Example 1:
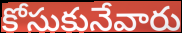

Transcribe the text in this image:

కోసుకునేవారు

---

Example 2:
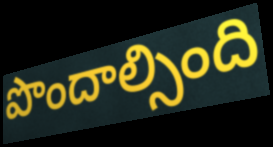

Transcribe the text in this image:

పొందాల్సింది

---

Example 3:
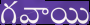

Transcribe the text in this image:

గవాయి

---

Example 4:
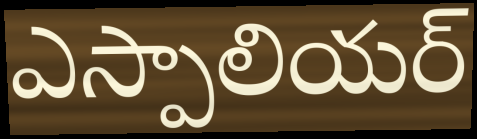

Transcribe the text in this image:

ఎస్పాలియర్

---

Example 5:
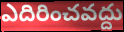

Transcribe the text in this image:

ఎదిరించవద్దు